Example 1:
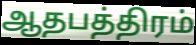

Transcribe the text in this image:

ஆதபத்திரம்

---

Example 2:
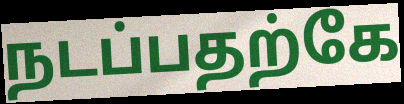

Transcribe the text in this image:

நடப்பதற்கே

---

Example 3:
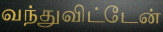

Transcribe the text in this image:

வந்துவிட்டேன்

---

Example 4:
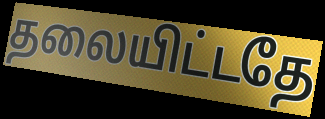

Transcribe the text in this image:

தலையிட்டதே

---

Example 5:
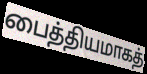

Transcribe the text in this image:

பைத்தியமாகத்